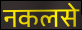
नकलसे